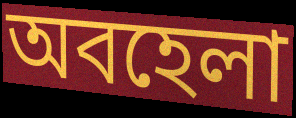
অবহেলা